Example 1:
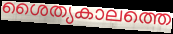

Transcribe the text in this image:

ശൈത്യകാലത്തെ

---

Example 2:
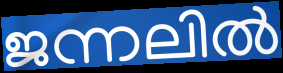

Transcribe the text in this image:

ജന്നലിൽ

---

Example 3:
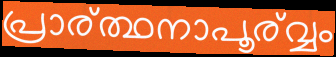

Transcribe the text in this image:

പ്രാര്ത്ഥനാപൂര്വ്വം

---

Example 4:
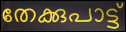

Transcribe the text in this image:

തേക്കുപാട്ട്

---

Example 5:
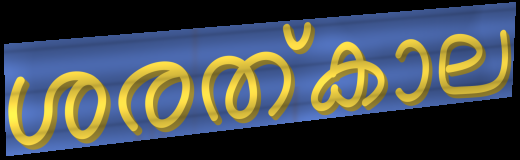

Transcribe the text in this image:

ശരത്കാല